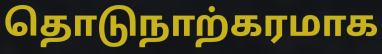
தொடுநாற்கரமாக